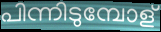
പിന്നിടുമ്പോള്